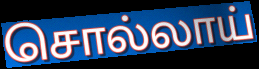
சொல்லாய்